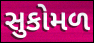
સુકોમળ